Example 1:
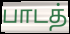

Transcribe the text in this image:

பாடத்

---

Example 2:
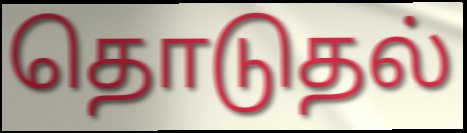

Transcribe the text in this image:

தொடுதல்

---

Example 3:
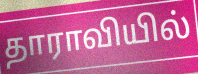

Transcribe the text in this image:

தாராவியில்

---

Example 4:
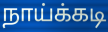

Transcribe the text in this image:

நாய்க்கடி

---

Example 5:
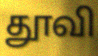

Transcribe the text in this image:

தூவி